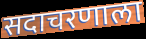
सदाचरणाला